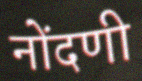
नोंदणी